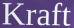
Kraft